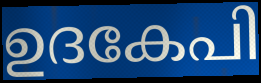
ഉദകേപി